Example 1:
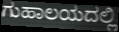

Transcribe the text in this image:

ಗುಹಾಲಯದಲ್ಲಿ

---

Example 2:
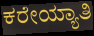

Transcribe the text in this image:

ಕರೇಯ್ಯಾತಿ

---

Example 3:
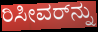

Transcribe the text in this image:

ರಿಸೀವರ್‌ನ್ನು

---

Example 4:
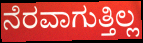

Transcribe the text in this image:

ನೆರವಾಗುತ್ತಿಲ್ಲ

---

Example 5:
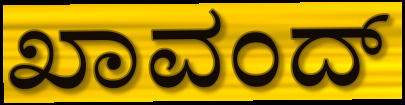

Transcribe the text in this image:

ಖಾವಂದ್